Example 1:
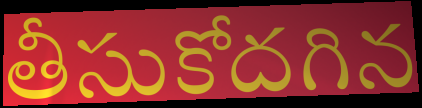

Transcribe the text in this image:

తీసుకోదగిన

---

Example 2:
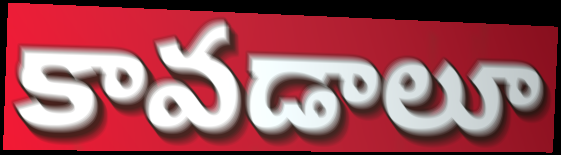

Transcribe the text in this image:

కావడాలూ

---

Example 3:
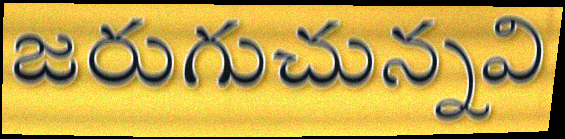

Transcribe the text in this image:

జరుగుచున్నవి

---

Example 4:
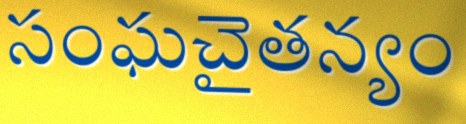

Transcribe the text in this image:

సంఘచైతన్యం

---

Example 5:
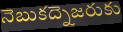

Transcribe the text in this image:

నెబుకద్నెజరుకు